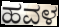
ಹವಳ